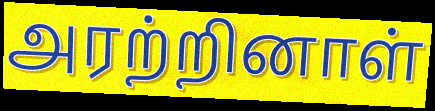
அரற்றினாள்